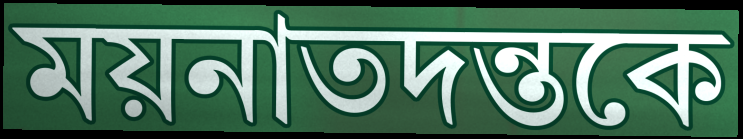
ময়নাতদন্তকে